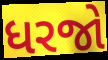
ધરજો